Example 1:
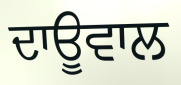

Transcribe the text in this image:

ਦਾਊਵਾਲ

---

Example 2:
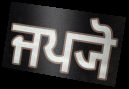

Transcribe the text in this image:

ਜਪ੍ਯੋ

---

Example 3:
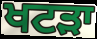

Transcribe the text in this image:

ਖਟੜਾ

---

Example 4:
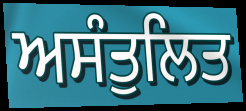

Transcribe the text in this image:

ਅਸੰਤੁਲਿਤ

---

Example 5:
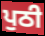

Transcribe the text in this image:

ਪੁਠੀ